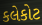
કલેકોટ